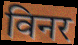
विनर